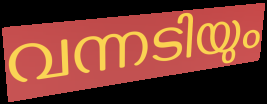
വന്നടിയും